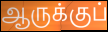
ஆருக்குப்